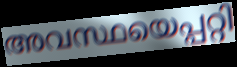
അവസ്ഥയെപ്പറ്റി